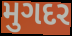
મુગદર